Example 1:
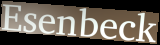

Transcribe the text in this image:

Esenbeck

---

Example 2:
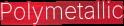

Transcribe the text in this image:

Polymetallic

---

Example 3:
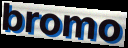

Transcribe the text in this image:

bromo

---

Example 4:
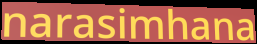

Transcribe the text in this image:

narasimhana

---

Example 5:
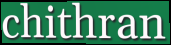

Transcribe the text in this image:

chithran